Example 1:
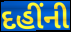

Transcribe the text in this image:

દહીંની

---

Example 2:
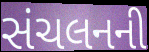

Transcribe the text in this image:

સંચલનની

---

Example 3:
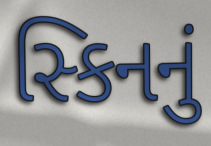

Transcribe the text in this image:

સ્કિનનું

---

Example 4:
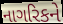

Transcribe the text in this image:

નાગરિકને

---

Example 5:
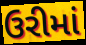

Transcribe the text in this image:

ઉરીમાં